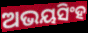
ଅଭୟସିଂହ